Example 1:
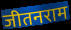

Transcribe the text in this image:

जीतनराम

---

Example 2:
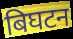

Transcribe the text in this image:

बिघटन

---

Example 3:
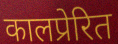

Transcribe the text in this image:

कालप्रेरित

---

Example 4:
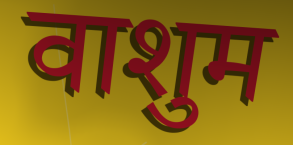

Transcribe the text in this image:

वाशुम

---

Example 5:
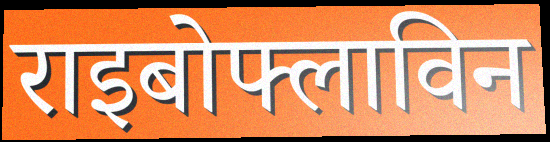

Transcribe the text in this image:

राइबोफ्लाविन